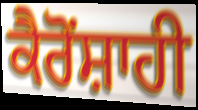
ਕੈਰੋਂਸ਼ਾਹੀ